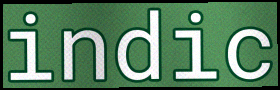
indic